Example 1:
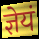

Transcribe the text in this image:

ज्ञेयं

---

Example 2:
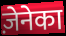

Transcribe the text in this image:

ज़ेनेका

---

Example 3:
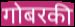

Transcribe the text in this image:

गोबरकी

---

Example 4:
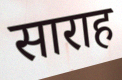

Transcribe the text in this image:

साराह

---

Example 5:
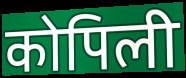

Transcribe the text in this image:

कोपिली